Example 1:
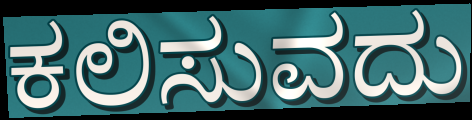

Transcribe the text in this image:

ಕಲಿಸುವದು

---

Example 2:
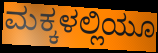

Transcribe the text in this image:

ಮಕ್ಕಳಲ್ಲಿಯೂ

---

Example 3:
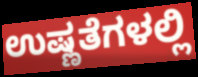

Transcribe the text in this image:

ಉಷ್ಣತೆಗಳಲ್ಲಿ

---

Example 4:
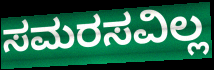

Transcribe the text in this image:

ಸಮರಸವಿಲ್ಲ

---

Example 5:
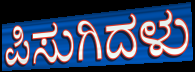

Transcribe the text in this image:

ಪಿಸುಗಿದಳು